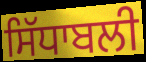
ਸਿੱਧਾਬਲੀ